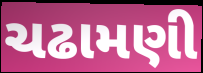
ચઢામણી